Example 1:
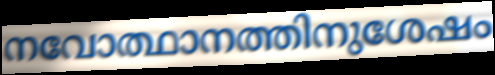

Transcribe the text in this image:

നവോത്ഥാനത്തിനുശേഷം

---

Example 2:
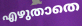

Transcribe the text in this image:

എഴുതാതെ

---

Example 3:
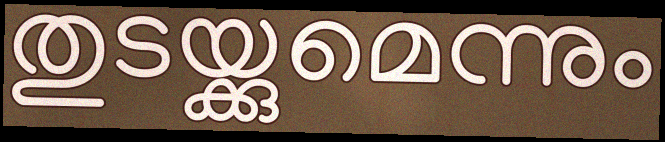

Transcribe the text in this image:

തുടയ്ക്കുമെന്നും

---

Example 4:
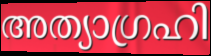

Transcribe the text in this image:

അത്യാഗ്രഹി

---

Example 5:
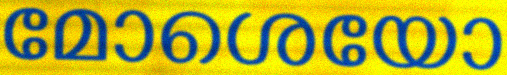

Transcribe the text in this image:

മോശെയോ